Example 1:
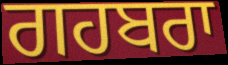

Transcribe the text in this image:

ਗਹਬਰਾ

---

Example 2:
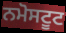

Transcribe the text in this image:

ਨਮੋਸਟੂਟ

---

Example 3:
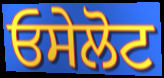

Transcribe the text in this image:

ਓਸੇਲੋਟ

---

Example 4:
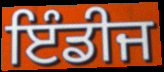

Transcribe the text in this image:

ਇੰਡੀਜ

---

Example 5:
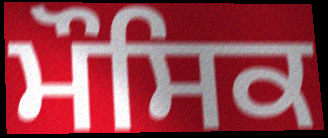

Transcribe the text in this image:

ਮੌਸਿਕ